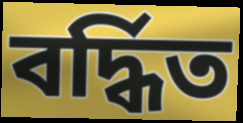
বৰ্দ্ধিত